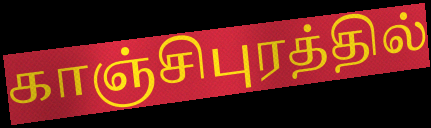
காஞ்சிபுரத்தில்